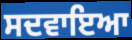
ਸਦਵਾਇਆ